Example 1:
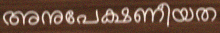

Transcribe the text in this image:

അനുപേക്ഷണീയത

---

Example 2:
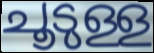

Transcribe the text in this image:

ചൂടുള്ള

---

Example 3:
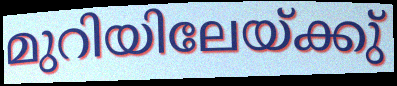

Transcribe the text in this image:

മുറിയിലേയ്ക്കു്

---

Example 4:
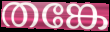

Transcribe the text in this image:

തങ്കേ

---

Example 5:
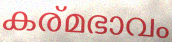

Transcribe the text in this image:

കര്മഭാവം